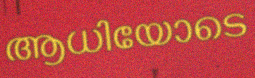
ആധിയോടെ